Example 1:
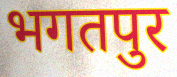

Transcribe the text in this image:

भगतपुर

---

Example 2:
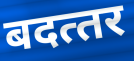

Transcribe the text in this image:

बदत्‍तर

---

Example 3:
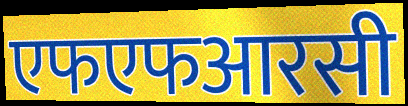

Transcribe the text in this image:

एफएफआरसी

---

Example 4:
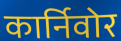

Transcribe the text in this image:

कार्निवोर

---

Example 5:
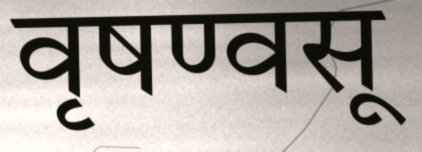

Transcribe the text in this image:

वृषण्वसू